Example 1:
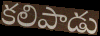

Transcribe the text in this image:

కలిపాడు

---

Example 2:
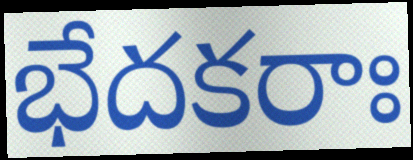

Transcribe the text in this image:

భేదకరాః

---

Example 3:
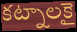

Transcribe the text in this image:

కట్నాలకై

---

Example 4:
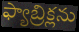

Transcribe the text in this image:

ఫ్యాబ్రిక్లను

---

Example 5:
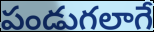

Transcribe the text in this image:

పండుగలాగే